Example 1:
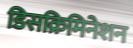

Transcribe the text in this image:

डिसक्रिमिनेशन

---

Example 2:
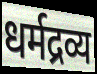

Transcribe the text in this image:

धर्मद्रव्य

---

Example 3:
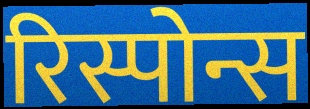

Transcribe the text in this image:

रिस्पोन्स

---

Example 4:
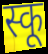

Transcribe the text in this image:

स्कू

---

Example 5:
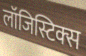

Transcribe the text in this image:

लॉजिस्टिक्‍स